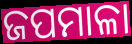
ଜପମାଳା